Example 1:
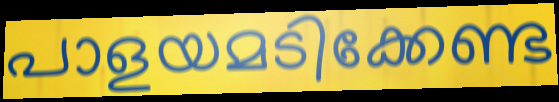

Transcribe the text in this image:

പാളയമടിക്കേണ്ട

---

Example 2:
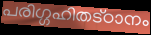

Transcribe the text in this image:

പരിഗ്ഗഹിതട്ഠാനം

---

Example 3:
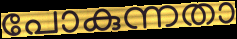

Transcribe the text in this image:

പോകുന്നതാ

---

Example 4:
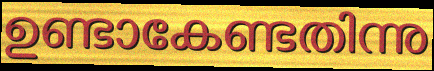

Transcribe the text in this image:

ഉണ്ടാകേണ്ടതിന്നു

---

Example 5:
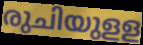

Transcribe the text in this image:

രുചിയുളള